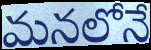
మనలోనే